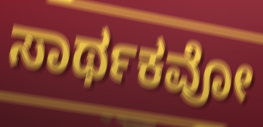
ಸಾರ್ಥಕವೋ